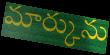
మార్కును